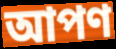
আপণ